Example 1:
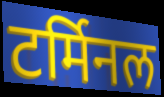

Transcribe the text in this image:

टर्मिनल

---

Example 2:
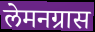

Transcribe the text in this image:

लेमनग्रास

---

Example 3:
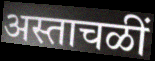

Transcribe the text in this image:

अस्ताचळीं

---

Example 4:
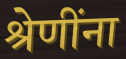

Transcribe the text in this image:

श्रेणींना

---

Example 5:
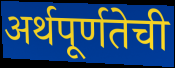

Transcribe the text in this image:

अर्थपूर्णतेची